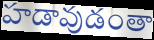
హడావుడంతా